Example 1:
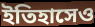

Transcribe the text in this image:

ইতিহাসেও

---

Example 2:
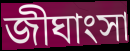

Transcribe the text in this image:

জীঘাংসা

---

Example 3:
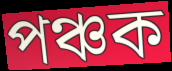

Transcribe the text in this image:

পঞ্চক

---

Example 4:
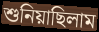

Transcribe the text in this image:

শুনিয়াছিলাম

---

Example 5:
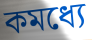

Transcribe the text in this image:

কমধ্যে